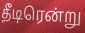
தீடிரென்று